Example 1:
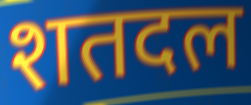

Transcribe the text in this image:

शतदल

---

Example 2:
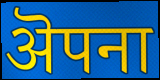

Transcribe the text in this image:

ऄपना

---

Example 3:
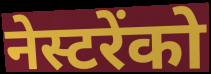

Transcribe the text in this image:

नेस्टरेंको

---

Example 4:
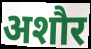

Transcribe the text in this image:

अशौर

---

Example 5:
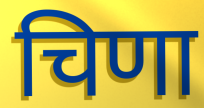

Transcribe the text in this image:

चिणा